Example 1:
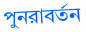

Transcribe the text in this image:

পুনরাবর্তন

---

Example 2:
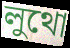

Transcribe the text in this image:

লুথো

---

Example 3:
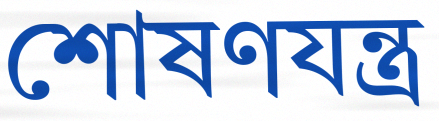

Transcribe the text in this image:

শোষণযন্ত্র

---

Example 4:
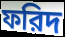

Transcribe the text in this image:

ফরিদ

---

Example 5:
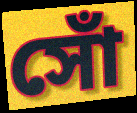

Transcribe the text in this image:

সোঁ